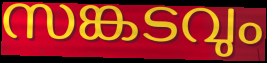
സങ്കടവും